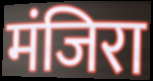
मंजिरा